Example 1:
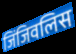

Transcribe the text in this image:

जिंजिवलिस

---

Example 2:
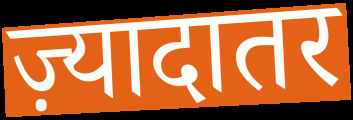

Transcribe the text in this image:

ज़्यादातर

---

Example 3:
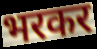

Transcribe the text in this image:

भरकर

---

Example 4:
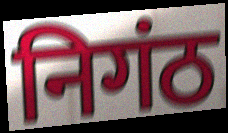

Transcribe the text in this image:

निगंठ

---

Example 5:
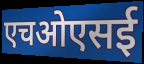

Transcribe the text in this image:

एचओएसई